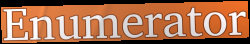
Enumerator